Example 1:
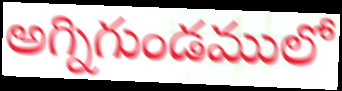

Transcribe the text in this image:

అగ్నిగుండములో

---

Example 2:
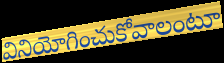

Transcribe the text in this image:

వినియోగించుకోవాలంటూ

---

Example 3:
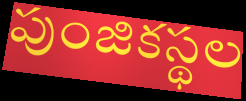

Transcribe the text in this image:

పుంజికస్థల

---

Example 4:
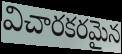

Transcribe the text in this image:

విచారకరమైన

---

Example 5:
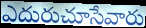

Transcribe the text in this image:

ఎదురుచూసేవారు